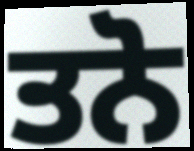
ਤਨੋ